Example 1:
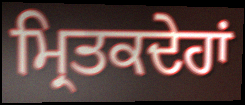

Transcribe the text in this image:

ਮ੍ਰਿਤਕਦੇਹਾਂ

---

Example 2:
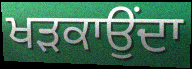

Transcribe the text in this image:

ਖੜਕਾਉਂਦਾ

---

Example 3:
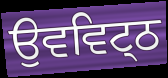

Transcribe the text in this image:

ਉਵਵਿਟ੍ਠ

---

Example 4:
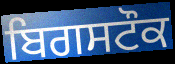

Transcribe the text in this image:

ਬਿਗਸਟੌਕ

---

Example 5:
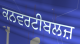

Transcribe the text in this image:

ਕਨਵਰਟੀਬਲਜ਼